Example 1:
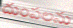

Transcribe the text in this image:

దుంపలను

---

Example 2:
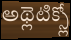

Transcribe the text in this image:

అథ్లెటిక్స్లో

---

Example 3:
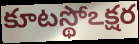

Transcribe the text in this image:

కూటస్థోఽక్షర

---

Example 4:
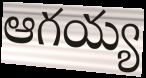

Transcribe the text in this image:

ఆగయ్య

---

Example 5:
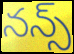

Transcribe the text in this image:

నన్స్